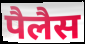
पैलैस